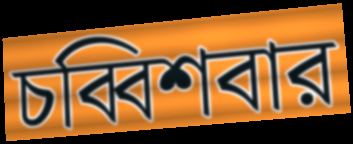
চব্বিশবার